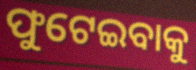
ଫୁଟେଇବାକୁ